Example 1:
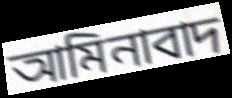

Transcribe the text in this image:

আমিনাবাদ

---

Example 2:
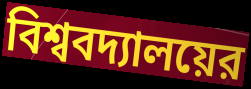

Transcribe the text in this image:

বিশ্ববদ্যালয়ের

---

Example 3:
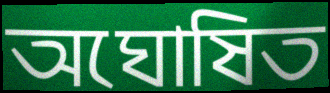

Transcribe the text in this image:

অঘোষিত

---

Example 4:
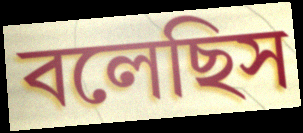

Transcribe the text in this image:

বলেছিস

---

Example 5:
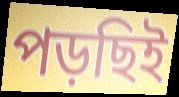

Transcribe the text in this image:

পড়ছিই